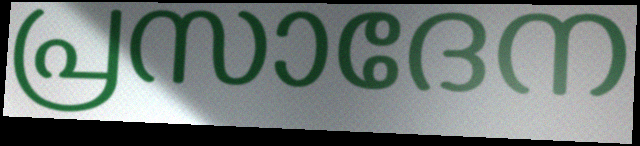
പ്രസാദേന